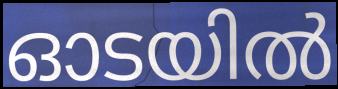
ഓടയിൽ